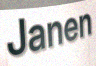
Janen